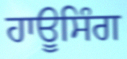
ਹਾਊਸਿੰਗ